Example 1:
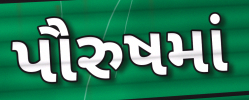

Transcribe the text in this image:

પૌરુષમાં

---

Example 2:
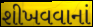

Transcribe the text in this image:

શીખવવાનાં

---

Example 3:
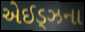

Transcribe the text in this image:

એઈડ્ઝના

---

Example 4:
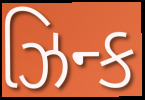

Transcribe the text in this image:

ઝિન્ક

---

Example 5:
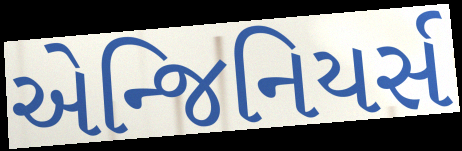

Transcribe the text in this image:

એન્જિનિયર્સ